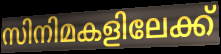
സിനിമകളിലേക്ക്